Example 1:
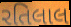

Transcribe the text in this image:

રતિલાલ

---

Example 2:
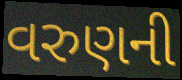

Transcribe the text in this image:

વરુણની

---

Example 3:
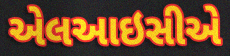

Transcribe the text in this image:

એલઆઇસીએ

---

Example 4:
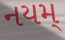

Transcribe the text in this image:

નયમ્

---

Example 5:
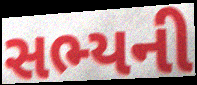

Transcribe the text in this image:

સભ્યની